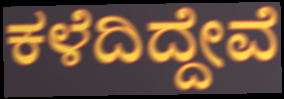
ಕಳೆದಿದ್ದೇವೆ